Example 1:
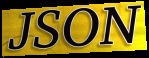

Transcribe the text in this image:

JSON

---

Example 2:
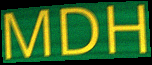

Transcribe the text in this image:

MDH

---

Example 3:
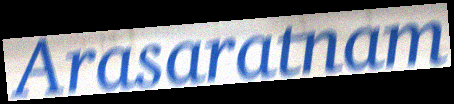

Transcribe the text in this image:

Arasaratnam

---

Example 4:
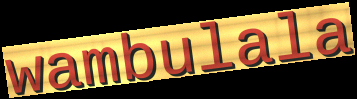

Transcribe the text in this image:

wambulala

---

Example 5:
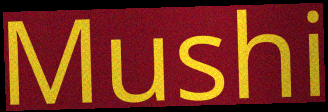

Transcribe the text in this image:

Mushi